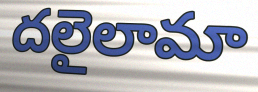
దలైలామా